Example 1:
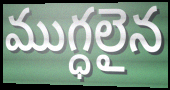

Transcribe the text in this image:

ముగ్ధలైన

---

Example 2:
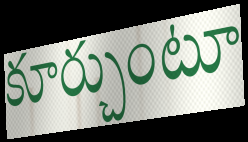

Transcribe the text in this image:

కూర్చుంటూ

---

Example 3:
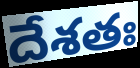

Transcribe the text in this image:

దేశతః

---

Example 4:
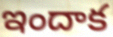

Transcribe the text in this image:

ఇందాక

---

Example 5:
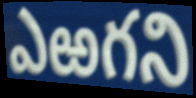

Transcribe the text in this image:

ఎఱగని